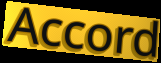
Accord